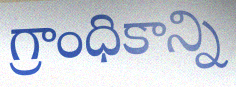
గ్రాంధికాన్ని